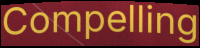
Compelling